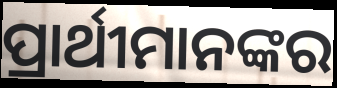
ପ୍ରାର୍ଥୀମାନଙ୍କର